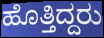
ಹೊತ್ತಿದ್ದರು